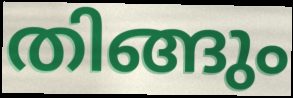
തിങ്ങും